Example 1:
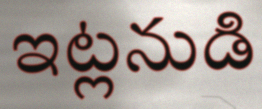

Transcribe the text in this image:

ఇట్లనుడి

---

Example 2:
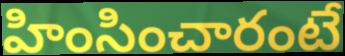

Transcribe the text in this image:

హింసించారంటే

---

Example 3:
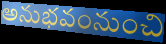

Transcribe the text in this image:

అనుభవంనుంచి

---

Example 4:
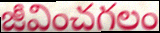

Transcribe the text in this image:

జీవించగలం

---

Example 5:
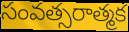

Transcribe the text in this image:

సంవత్సరాత్మక